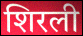
शिरली